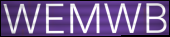
WEMWB